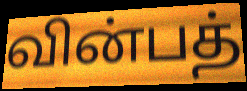
வின்பத்